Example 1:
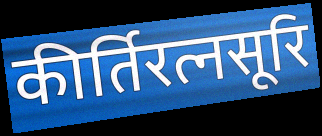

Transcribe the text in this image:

कीर्तिरत्नसूरि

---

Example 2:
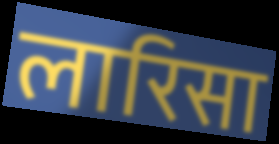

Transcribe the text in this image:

लारिसा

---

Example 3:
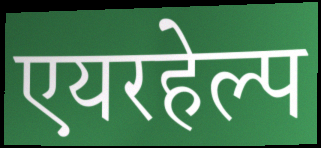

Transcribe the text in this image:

एयरहेल्प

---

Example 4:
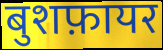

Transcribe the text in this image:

बुशफ़ायर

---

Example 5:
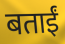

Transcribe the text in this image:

बताईं